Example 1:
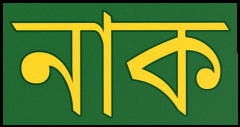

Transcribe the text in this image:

নাক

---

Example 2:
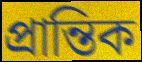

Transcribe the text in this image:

প্রান্তিক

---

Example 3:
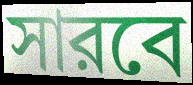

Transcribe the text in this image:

সারবে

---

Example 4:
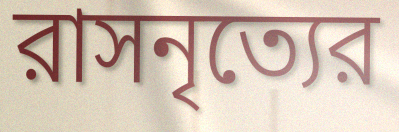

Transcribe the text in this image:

রাসনৃত্যের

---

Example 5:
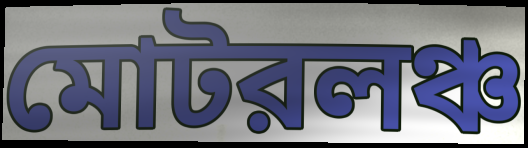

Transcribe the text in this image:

মোটরলঞ্চ